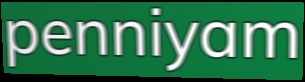
penniyam